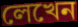
লেখেন